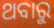
ଥବାରୁ